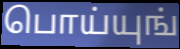
பொய்யுங்